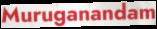
Muruganandam